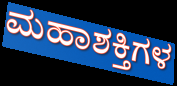
ಮಹಾಶಕ್ತಿಗಳ